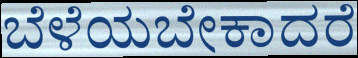
ಬೆಳೆಯಬೇಕಾದರೆ